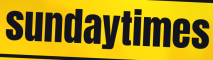
sundaytimes